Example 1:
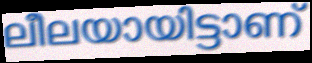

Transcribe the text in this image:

ലീലയായിട്ടാണ്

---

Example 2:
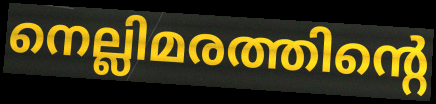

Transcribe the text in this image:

നെല്ലിമരത്തിന്റെ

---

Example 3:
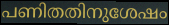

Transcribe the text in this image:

പണിതതിനുശേഷം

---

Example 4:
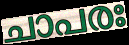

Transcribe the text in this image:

ചാപരഃ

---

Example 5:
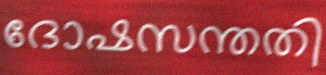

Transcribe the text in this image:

ദോഷസന്തതി